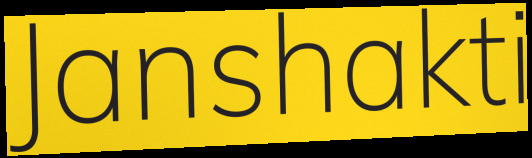
Janshakti